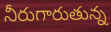
నీరుగారుతున్న